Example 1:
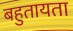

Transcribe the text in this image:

बहुतायता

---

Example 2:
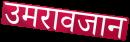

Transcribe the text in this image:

उमरावजान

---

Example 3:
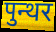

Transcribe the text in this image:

पुन्थर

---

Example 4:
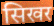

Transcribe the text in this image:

सिखर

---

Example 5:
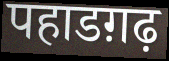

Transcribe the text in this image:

पहाडग़ढ़